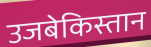
उजबेकिस्तान